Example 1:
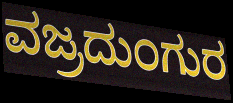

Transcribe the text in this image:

ವಜ್ರದುಂಗುರ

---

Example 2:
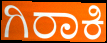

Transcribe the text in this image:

ಗಿರಾಕಿ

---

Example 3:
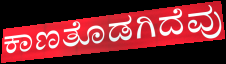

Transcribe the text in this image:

ಕಾಣತೊಡಗಿದೆವು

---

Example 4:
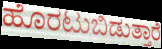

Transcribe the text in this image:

ಹೊರಟುಬಿಡುತ್ತಾರೆ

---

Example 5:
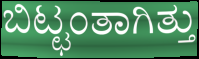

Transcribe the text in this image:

ಬಿಟ್ಟಂತಾಗಿತ್ತು